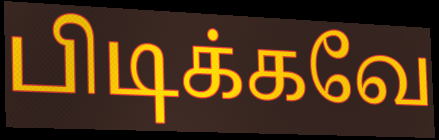
பிடிக்கவே